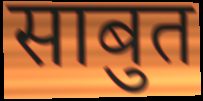
साबुत